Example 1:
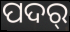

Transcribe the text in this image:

ପଦର୍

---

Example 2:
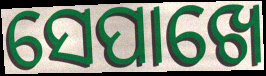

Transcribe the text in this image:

ସେପାଖେ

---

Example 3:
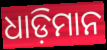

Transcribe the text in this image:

ଧାଡ଼ିମାନ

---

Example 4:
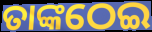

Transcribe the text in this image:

ତାଙ୍କଠେଇ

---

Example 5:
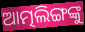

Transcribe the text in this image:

ଆତ୍ମଲିଙ୍ଗଙ୍କୁ